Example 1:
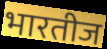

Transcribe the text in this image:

भारतीज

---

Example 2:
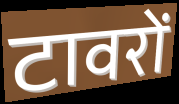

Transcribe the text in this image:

टावरों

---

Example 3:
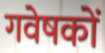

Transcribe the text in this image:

गवेषकों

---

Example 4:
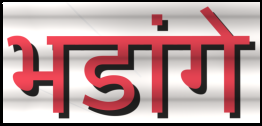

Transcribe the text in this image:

भडांगे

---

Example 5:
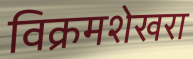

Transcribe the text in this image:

विक्रमशेखरा